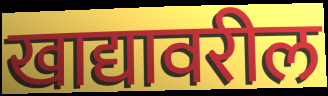
खाद्यावरील